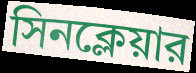
সিনক্লেয়ার